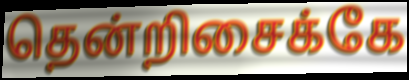
தென்றிசைக்கே